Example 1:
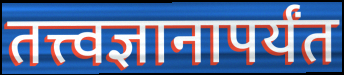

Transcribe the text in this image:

तत्त्वज्ञानापर्यंत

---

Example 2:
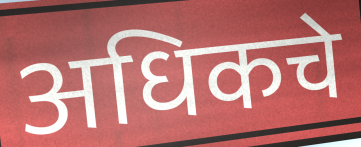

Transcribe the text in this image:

अधिकचे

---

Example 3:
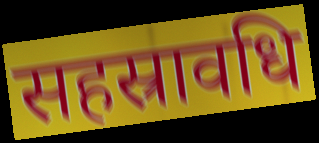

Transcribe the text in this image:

सहस्रावधि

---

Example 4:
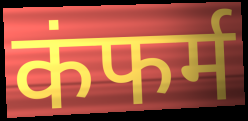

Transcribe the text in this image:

कंफर्म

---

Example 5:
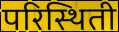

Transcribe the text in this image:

परिस्थिती